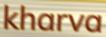
kharva